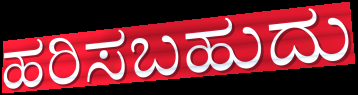
ಹರಿಸಬಹುದು